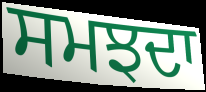
ਸਮਝਦਾ